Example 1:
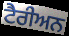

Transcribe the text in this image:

ਟੈਰੀਅਨ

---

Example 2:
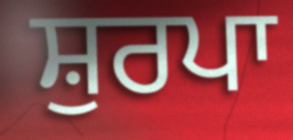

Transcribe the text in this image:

ਸ਼ੁਰਪਾ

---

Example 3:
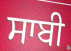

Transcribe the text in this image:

ਸਾਬੀ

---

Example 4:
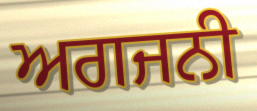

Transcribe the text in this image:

ਅਗਜਨੀ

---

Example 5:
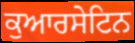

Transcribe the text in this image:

ਕੁਆਰਸੇਟਿਨ